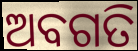
ଅବଗତି